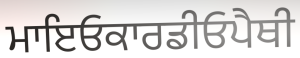
ਮਾਇਓਕਾਰਡੀਓਪੈਥੀ